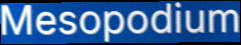
Mesopodium